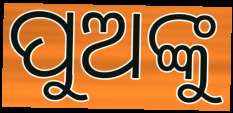
ପୁଅଙ୍କୁ